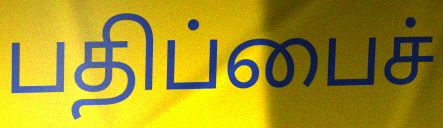
பதிப்பைச்